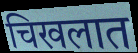
चिखलात